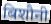
बिशौनी